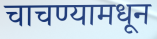
चाचण्यामधून